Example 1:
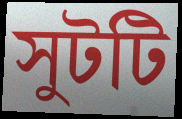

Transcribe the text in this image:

সুটটি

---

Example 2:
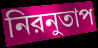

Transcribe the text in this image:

নিরনুতাপ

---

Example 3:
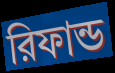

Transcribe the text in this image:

রিফান্ড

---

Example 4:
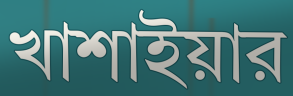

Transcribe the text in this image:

খাশাইয়ার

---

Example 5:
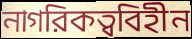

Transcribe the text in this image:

নাগরিকত্ববিহীন